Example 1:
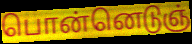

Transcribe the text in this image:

பொன்னெடுஞ்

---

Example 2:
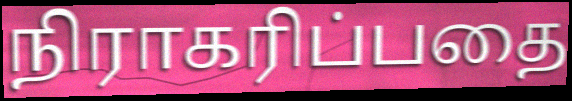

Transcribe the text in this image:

நிராகரிப்பதை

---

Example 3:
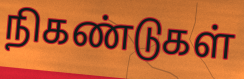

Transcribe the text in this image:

நிகண்டுகள்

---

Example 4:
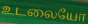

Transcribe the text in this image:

உடலையோ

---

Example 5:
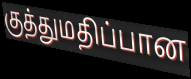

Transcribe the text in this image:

குத்துமதிப்பான